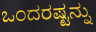
ಒಂದರಷ್ಟನ್ನು